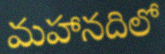
మహానదిలో